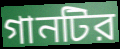
গানটির